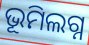
ଭୂମିଲଗ୍ନ